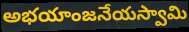
అభయాంజనేయస్వామి